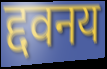
द्दवनय